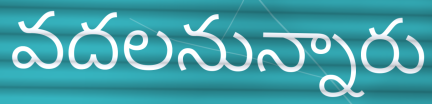
వదలనున్నారు